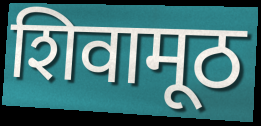
शिवामूठ